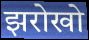
झरोखो